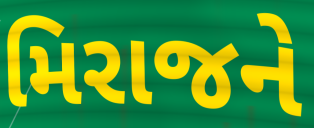
મિરાજને